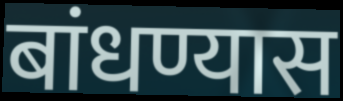
बांधण्यास